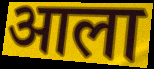
आला